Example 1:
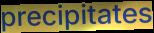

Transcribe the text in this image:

precipitates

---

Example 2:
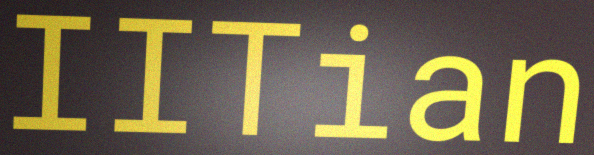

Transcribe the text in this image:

IITian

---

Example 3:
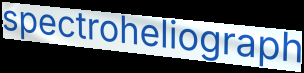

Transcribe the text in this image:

spectroheliograph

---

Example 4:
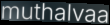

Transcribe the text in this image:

muthalvaa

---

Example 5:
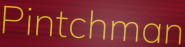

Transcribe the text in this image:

Pintchman